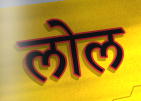
लोल